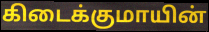
கிடைக்குமாயின்